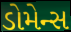
ડોમેન્સ